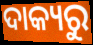
ଦାକ୍ୟରୁ